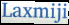
Laxmiji